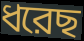
ধরেছ